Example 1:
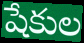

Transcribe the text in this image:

షేకుల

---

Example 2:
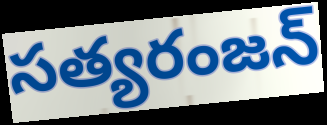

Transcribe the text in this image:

సత్యరంజన్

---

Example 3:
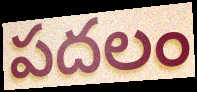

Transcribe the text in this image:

పదలం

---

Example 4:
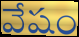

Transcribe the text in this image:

వేషం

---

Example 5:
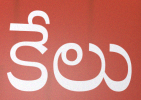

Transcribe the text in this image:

కేలు